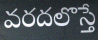
వరదలొస్తే